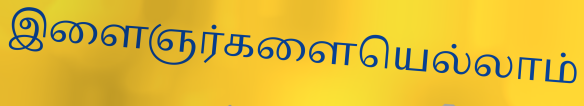
இளைஞர்களையெல்லாம்